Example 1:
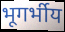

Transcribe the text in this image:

भूगर्भीय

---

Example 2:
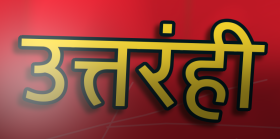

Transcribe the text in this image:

उत्तरंही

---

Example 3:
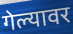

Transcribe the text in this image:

गेल्यावर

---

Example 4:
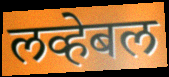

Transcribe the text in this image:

लव्हेबल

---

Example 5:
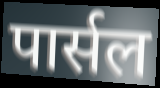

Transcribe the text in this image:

पार्सल